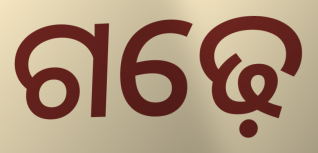
ଗଢ଼େ